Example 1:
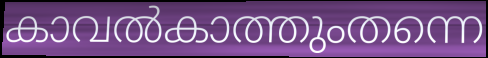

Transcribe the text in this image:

കാവൽകാത്തുംതന്നെ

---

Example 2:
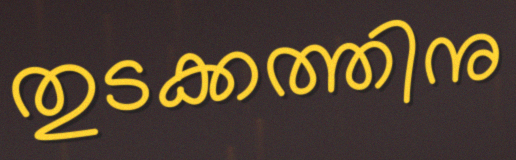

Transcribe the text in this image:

തുടക്കത്തിനു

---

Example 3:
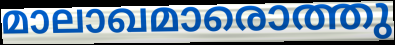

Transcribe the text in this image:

മാലാഖമാരൊത്തു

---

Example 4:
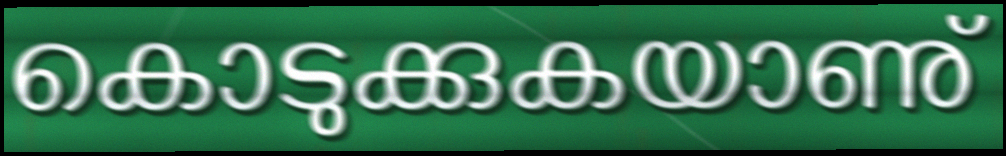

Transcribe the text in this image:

കൊടുക്കുകയാണു്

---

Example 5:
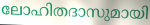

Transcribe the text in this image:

ലോഹിതദാസുമായി